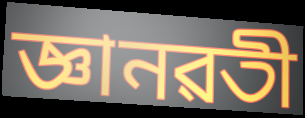
জ্ঞানৱতী